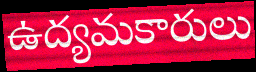
ఉద్యమకారులు